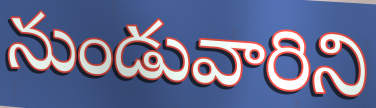
నుండువారిని